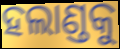
ହଲାଣ୍ଡକୁ